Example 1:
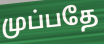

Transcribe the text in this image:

முப்பதே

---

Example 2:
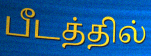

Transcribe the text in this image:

பீடத்தில்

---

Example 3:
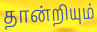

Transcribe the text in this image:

தான்றியும்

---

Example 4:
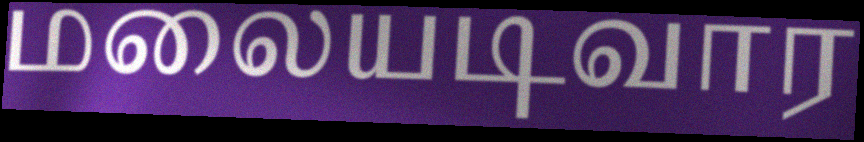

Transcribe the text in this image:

மலையடிவார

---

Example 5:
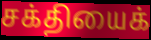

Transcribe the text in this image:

சக்தியைக்